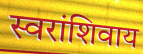
स्वरांशिवाय